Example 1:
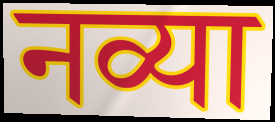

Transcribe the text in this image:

नव्या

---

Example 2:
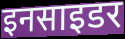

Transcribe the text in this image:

इनसाइडर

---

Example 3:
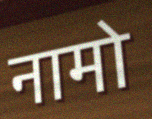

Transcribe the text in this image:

नामो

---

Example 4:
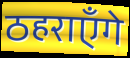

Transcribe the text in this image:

ठहराएँगे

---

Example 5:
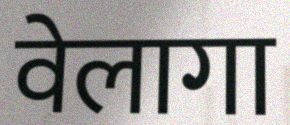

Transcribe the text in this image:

वेलागा